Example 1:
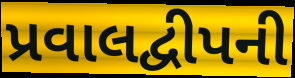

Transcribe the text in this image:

પ્રવાલદ્વીપની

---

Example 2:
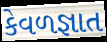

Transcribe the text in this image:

કેવળજ્ઞાત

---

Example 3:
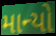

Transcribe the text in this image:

માન્યો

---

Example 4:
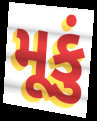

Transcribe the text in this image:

મૂકું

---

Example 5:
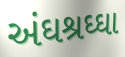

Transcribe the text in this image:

અંઘશ્રઘ્ઘા